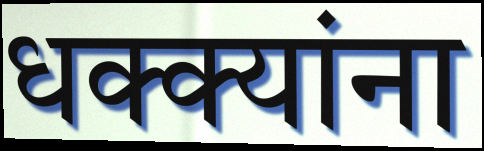
धक्क्यांना